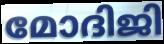
മോദിജി